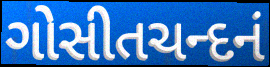
ગોસીતચન્દનં